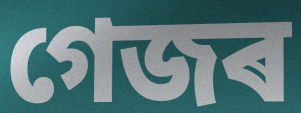
গেজৰ